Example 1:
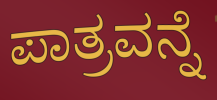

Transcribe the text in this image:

ಪಾತ್ರವನ್ನೆ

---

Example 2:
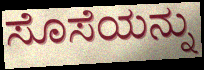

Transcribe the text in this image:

ಸೊಸೆಯನ್ನು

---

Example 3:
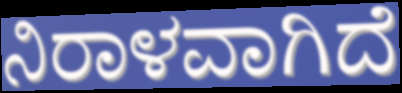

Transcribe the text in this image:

ನಿರಾಳವಾಗಿದೆ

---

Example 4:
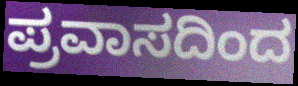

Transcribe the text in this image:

ಪ್ರವಾಸದಿಂದ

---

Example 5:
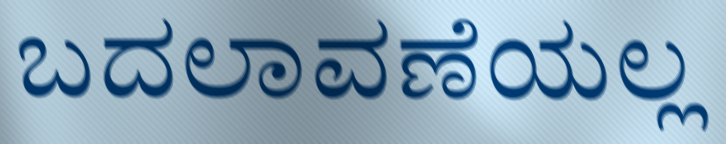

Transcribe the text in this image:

ಬದಲಾವಣೆಯಲ್ಲ